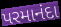
પરમાનંદા